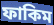
ফাকিম